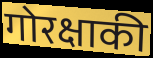
गोरक्षाकी